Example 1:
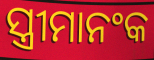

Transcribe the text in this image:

ସ୍ତ୍ରୀମାନଂକ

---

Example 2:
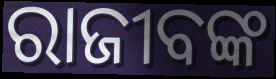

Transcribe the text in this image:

ରାଜୀବଙ୍କ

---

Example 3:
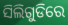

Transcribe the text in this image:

ସିଲିଗୁଡିରେ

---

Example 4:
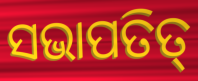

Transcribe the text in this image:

ସଭାପତିତ୍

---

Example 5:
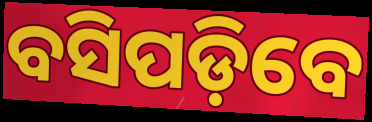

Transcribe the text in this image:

ବସିପଡ଼ିବେ